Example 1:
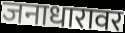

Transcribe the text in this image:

जनाधारावर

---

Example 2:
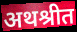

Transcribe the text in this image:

अथश्रीत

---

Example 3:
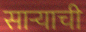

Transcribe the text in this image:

साऱ्याची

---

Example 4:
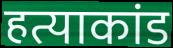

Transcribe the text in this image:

हत्याकांड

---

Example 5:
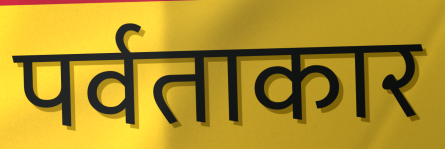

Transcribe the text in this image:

पर्वताकार